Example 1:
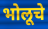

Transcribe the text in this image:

भोलूचे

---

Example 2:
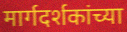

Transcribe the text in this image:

मार्गदर्शकांच्या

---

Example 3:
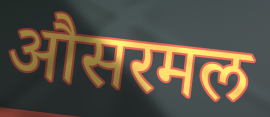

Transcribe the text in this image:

औसरमल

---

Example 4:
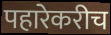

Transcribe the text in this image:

पहारेकरीच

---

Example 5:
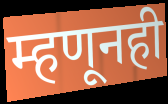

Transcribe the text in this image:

म्हणूनही